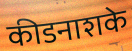
कीडनाशके